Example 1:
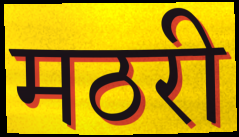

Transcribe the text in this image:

मठरी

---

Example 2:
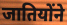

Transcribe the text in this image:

जातियोंने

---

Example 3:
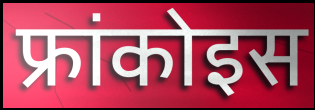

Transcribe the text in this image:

फ्रांकोइस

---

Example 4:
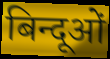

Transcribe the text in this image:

बिन्दूओं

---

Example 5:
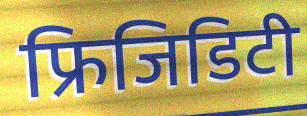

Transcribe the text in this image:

फ्रिजिडिटी